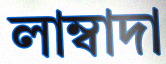
লাম্বাদা